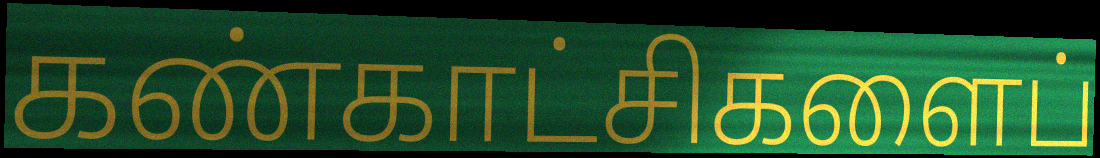
கண்காட்சிகளைப்